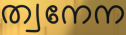
ത്വനേന